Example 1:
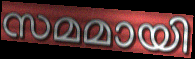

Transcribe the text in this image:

സമമായി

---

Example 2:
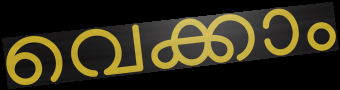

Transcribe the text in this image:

വെക്കാം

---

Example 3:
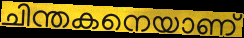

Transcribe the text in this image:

ചിന്തകനെയാണ്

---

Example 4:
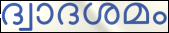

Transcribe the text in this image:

ദ്വാദശമം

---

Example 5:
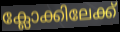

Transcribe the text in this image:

ക്ലോക്കിലേക്ക്